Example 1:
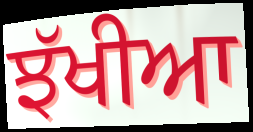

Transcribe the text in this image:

ਝੱਖੀਆ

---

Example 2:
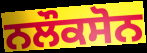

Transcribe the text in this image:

ਨਲੌਕਸੋਨ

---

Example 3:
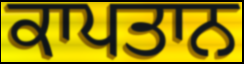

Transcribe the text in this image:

ਕਾਪਤਾਨ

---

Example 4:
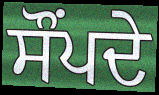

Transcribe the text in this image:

ਸੌਂਪਦੇ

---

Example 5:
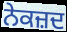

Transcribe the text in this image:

ਨੇਕਜ਼ਦ